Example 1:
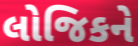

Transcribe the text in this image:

લોજિકને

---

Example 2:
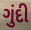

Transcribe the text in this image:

ગુંદી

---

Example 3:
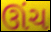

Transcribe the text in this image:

ઊંચ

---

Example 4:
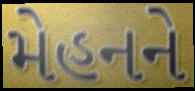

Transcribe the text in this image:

મેહનને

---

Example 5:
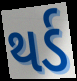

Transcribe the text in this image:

થર્ડ